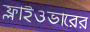
ফ্লাইওভারের